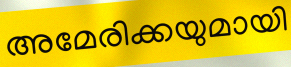
അമേരിക്കയുമായി